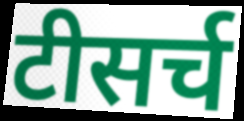
टीसर्च